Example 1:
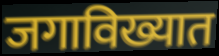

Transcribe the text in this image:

जगाविख्यात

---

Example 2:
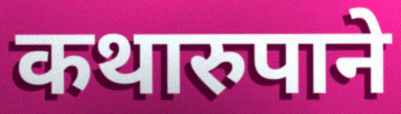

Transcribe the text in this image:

कथारुपाने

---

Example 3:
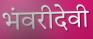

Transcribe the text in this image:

भंवरीदेवी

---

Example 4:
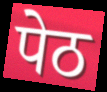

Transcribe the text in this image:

पेठ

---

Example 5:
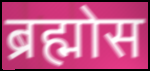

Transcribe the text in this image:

ब्रह्मोस